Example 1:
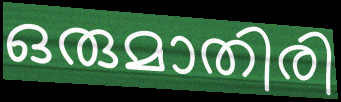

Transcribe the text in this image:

ഒരുമാതിരി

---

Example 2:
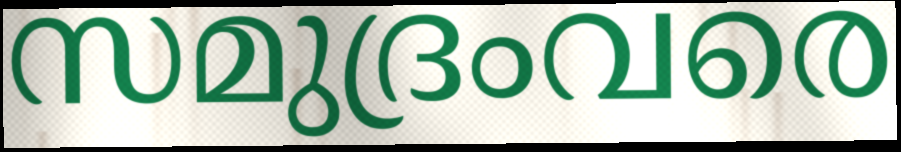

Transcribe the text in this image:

സമുദ്രംവരെ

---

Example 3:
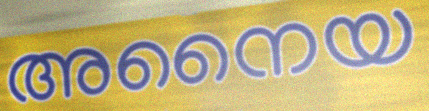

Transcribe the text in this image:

അനൈയ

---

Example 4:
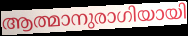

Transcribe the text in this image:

ആത്മാനുരാഗിയായി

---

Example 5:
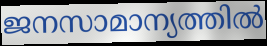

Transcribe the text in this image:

ജനസാമാന്യത്തിൽ